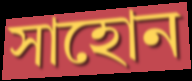
সাহোন